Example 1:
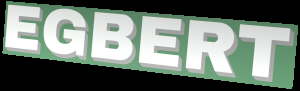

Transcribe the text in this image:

EGBERT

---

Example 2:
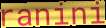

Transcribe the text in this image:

ranini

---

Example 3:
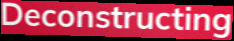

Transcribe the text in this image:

Deconstructing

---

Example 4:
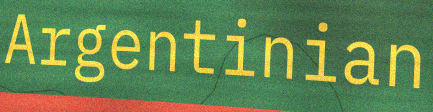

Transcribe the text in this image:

Argentinian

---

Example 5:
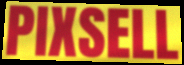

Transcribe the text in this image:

PIXSELL